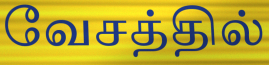
வேசத்தில்